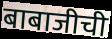
बाबाजीची